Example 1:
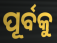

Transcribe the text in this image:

ପୂର୍ବକୁ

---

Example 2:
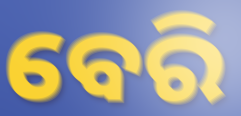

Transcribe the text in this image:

ବେରି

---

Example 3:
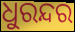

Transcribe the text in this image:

ଧୁରନ୍ଦର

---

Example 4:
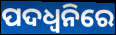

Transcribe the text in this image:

ପଦଧ୍ୱନିରେ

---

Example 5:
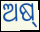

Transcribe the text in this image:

ଅଷ୍